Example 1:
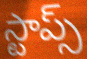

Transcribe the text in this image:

స్టాప్స్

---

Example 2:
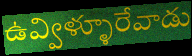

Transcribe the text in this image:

ఉవ్విళ్ళూరేవాడు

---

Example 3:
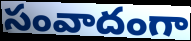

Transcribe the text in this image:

సంవాదంగా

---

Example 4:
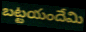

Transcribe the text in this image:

బట్టయందేమి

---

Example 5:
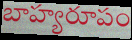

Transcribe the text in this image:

బాహ్యరూపం